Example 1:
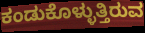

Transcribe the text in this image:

ಕಂಡುಕೊಳ್ಳುತ್ತಿರುವ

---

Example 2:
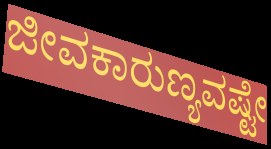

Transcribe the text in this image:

ಜೀವಕಾರುಣ್ಯವಷ್ಟೇ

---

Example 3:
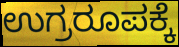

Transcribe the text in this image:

ಉಗ್ರರೂಪಕ್ಕೆ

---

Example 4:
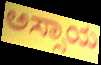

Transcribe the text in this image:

ಅಸ್ಸಾಯ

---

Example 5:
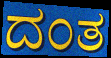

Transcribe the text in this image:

ದಂತ